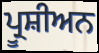
ਪ੍ਰੂਸ਼ੀਅਨ